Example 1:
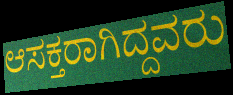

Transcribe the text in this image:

ಆಸಕ್ತರಾಗಿದ್ದವರು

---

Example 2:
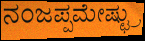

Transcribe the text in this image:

ನಂಜಪ್ಪಮೇಷ್ಟ್ರು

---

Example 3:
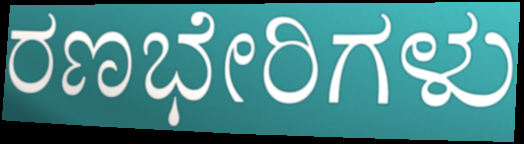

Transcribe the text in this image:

ರಣಭೇರಿಗಳು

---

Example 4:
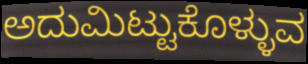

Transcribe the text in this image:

ಅದುಮಿಟ್ಟುಕೊಳ್ಳುವ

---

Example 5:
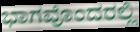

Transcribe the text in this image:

ಭಾಗವೊಂದರಲ್ಲಿ